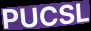
PUCSL